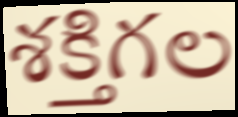
శక్తిగల